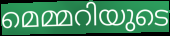
മെമ്മറിയുടെ